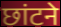
छांटने